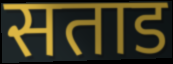
सताड